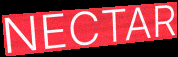
NECTAR